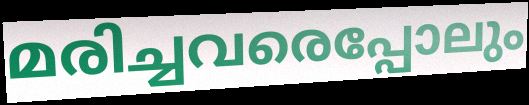
മരിച്ചവരെപ്പോലും